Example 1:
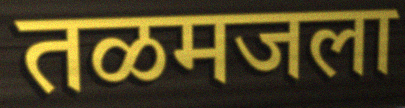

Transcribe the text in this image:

तळमजला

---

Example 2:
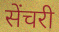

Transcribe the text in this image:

सेंचरी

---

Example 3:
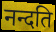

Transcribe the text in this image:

नन्दति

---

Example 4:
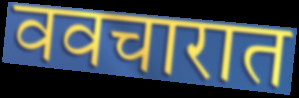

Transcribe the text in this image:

ववचारात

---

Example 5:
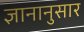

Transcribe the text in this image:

ज्ञानानुसार